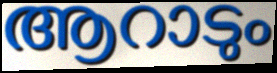
ആറാടും